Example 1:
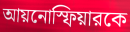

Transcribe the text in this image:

আয়নোস্ফিয়ারকে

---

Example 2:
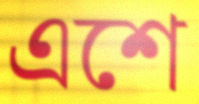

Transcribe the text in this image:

এশে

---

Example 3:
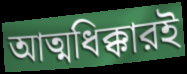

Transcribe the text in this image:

আত্মধিক্কারই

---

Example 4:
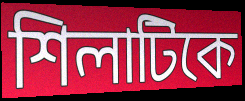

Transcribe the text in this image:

শিলাটিকে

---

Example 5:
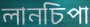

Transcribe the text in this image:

লানচিপা